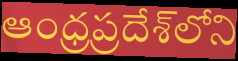
ఆంధ్రప్రదేశ్‌లోని